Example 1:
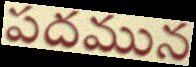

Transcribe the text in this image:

పదమున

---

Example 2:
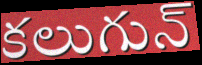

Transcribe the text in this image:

కలుగున్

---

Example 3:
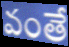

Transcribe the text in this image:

వంతే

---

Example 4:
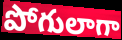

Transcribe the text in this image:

పోగులాగా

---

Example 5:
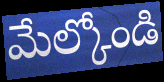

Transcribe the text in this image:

మేల్కోండి